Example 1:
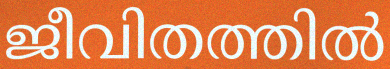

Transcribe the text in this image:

ജീവിതത്തിൽ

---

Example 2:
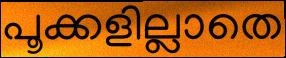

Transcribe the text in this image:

പൂക്കളില്ലാതെ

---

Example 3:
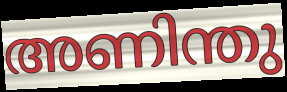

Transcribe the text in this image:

അണിന്തു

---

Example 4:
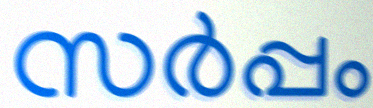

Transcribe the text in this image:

സർപ്പം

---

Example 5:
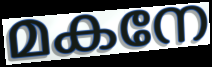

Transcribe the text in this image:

മകനേ